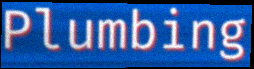
Plumbing